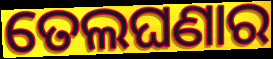
ତେଲଘଣାର